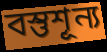
বস্তুশূন্য